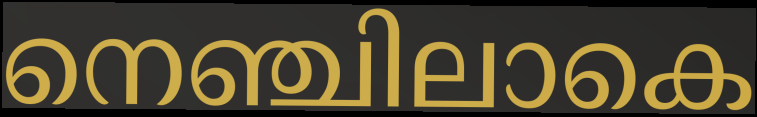
നെഞ്ചിലാകെ